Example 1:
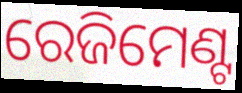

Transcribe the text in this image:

ରେଜିମେଣ୍ଟ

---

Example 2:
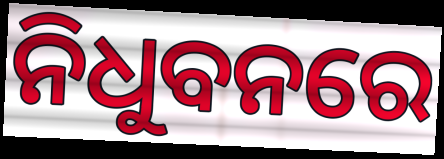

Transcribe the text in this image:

ନିଧୁବନରେ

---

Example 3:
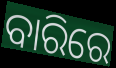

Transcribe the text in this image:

ବାରିରେ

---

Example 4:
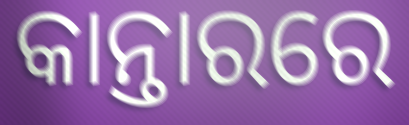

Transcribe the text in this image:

କାନ୍ତାରରେ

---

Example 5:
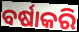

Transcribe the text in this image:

ବର୍ଷାକରି